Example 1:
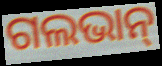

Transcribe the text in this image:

ଗଲଭାନ୍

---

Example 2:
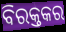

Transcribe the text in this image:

ବିରକ୍ତକର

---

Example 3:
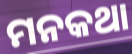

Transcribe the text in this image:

ମନକଥା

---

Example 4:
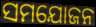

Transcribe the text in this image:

ସମଯୋଜନ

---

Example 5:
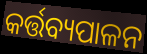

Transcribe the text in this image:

କର୍ତ୍ତବ୍ୟପାଳନ